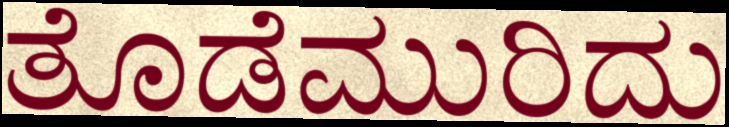
ತೊಡೆಮುರಿದು